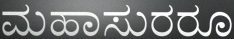
ಮಹಾಸುರರೂ